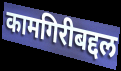
कामगिरीबद्दल